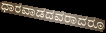
ಧಾರವಾಡದವರಾದರೂ